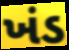
ખંડ